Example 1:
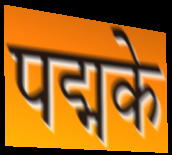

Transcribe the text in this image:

पद्मके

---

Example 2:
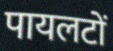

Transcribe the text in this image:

पायलटों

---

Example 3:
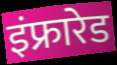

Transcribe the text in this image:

इंफ्रारेड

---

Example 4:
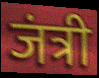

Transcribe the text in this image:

जंत्री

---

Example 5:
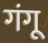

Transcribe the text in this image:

गंगू